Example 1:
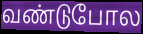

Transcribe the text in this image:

வண்டுபோல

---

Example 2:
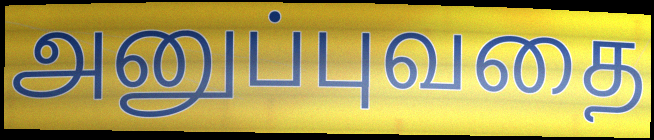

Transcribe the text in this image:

அனுப்புவதை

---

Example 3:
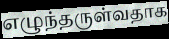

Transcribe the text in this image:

எழுந்தருள்வதாக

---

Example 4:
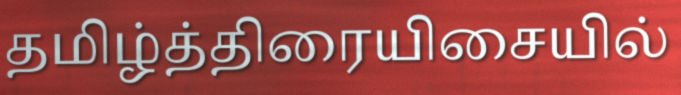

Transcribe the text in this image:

தமிழ்த்திரையிசையில்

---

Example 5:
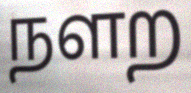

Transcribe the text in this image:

நளற